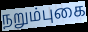
நறும்புகை